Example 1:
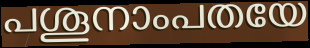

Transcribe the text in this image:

പശൂനാംപതയേ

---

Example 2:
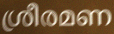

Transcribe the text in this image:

ശ്രീരമണ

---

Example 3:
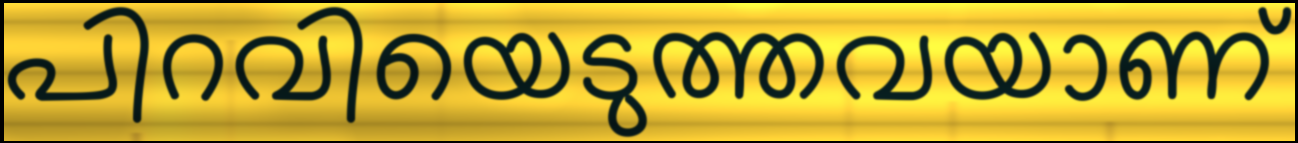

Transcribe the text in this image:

പിറവിയെടുത്തവയാണ്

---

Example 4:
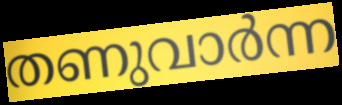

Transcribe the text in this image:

തണുവാർന്ന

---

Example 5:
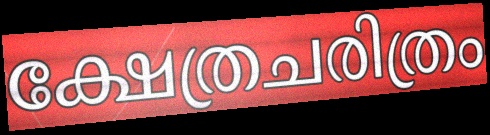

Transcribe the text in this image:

ക്ഷേത്രചരിത്രം